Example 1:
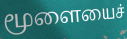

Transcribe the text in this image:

மூளையைச்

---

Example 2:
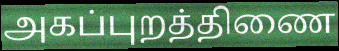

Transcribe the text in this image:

அகப்புறத்திணை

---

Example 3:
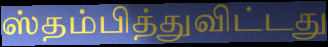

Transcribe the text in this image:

ஸ்தம்பித்துவிட்டது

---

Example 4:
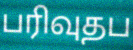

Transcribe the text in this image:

பரிவுதப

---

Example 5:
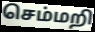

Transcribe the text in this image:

செம்மறி